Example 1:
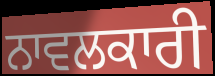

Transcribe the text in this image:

ਨਾਵਲਕਾਰੀ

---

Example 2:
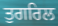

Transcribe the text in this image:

ਤੁਗਰਿਲ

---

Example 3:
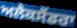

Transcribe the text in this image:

ਅਲੈਕਸੈਂਡਰਾ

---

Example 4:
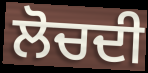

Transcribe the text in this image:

ਲੋਚਦੀ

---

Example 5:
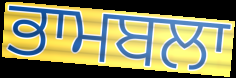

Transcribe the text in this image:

ਭਾਮਬਲਾ